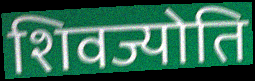
शिवज्योति